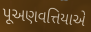
પૂઅણવત્તિયાએ